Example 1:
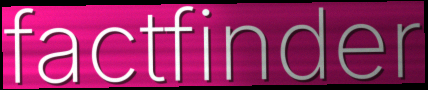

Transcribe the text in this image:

factfinder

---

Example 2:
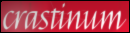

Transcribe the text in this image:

crastinum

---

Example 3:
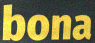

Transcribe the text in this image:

bona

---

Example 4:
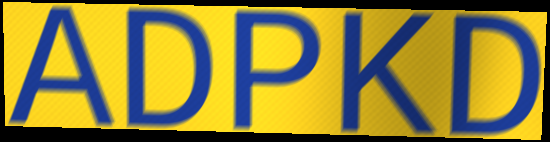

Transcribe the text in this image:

ADPKD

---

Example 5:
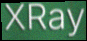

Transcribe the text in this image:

XRay